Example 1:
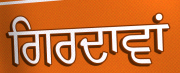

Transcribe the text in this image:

ਗਿਰਦਾਵਾਂ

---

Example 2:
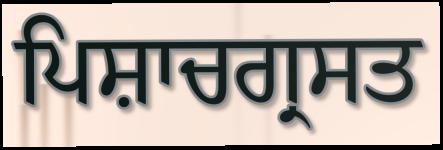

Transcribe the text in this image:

ਪਿਸ਼ਾਚਗ੍ਰਸਤ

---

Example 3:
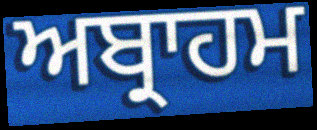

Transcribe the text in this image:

ਅਬ੍ਰਾਹਮ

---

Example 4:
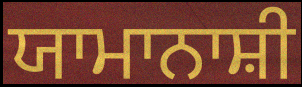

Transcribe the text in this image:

ਯਾਮਾਨਾਸ਼ੀ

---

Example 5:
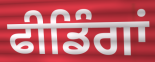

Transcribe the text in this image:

ਫੀਡਿੰਗਾਂ